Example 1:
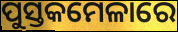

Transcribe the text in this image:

ପୁସ୍ତକମେଳାରେ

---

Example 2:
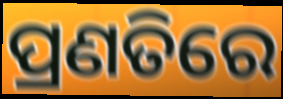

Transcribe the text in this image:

ପ୍ରଣତିରେ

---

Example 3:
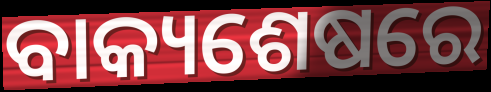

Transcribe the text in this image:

ବାକ୍ୟଶେଷରେ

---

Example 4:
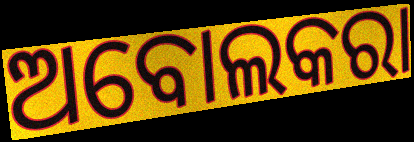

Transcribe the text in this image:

ଅବୋଲକରା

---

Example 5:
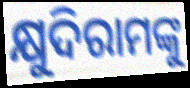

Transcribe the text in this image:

କ୍ଷୁଦିରାମଙ୍କୁ